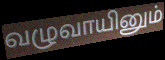
வழுவாயினும்